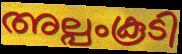
അല്പംകൂടി